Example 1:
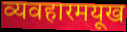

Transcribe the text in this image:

व्यवहारमयूख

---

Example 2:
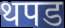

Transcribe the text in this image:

थपड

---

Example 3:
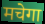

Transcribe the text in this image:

मचेगा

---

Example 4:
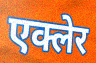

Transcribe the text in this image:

एक्लेर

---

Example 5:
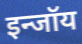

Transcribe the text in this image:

इन्जॉय